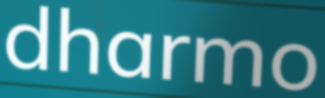
dharmo